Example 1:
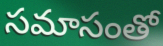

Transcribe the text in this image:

సమాసంతో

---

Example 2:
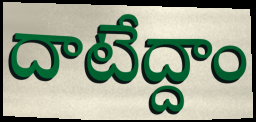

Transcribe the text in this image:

దాటేద్దాం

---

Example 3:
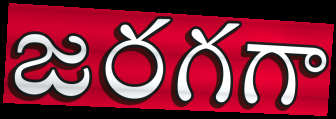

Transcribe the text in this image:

జరగగా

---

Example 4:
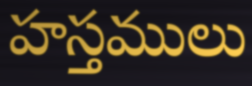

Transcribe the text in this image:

హస్తములు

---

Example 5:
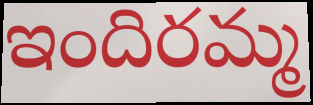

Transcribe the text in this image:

ఇందిరమ్మ